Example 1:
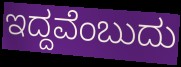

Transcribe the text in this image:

ಇದ್ದವೆಂಬುದು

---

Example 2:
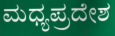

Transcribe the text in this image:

ಮಧ್ಯಪ್ರದೇಶ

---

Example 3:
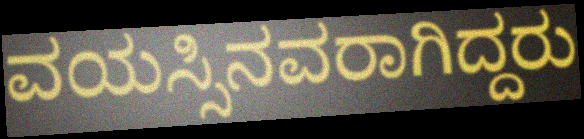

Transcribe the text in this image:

ವಯಸ್ಸಿನವರಾಗಿದ್ದರು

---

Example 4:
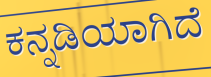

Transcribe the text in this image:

ಕನ್ನಡಿಯಾಗಿದೆ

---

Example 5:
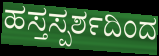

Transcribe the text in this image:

ಹಸ್ತಸ್ಪರ್ಶದಿಂದ